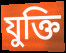
যুক্তি